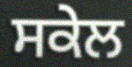
ਸਕੇਲ